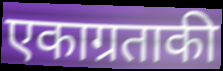
एकाग्रताकी